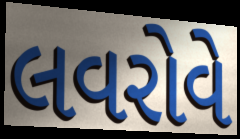
લવરોવે